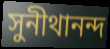
সুনীথানন্দ